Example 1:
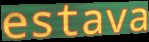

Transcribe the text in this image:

estava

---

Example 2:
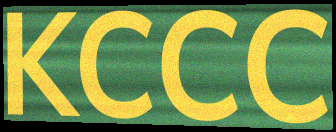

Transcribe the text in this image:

KCCC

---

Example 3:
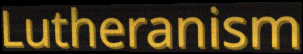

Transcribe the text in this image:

Lutheranism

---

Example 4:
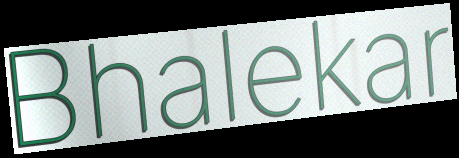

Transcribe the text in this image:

Bhalekar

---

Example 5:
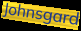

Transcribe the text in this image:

Johnsgard